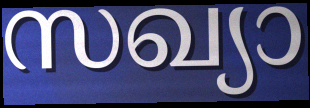
സഖ്യാ